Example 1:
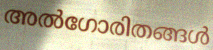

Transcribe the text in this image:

അൽഗോരിതങ്ങൾ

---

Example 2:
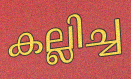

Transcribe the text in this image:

കല്ലിച്ച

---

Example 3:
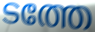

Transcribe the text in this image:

ടത്തേ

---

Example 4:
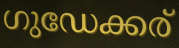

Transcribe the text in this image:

ഗുഡേക്കര്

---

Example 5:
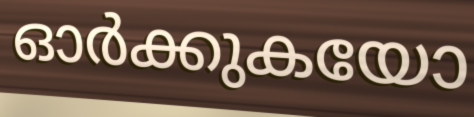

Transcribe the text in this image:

ഓർക്കുകയോ